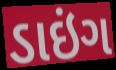
ડાઇંગ